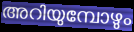
അറിയുമ്പോഴും